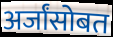
अर्जांसोबत